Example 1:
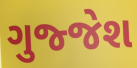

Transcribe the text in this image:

ગુજ્જેશ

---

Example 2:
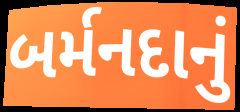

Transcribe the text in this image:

બર્મનદાનું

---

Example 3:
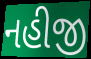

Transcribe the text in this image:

નહીજી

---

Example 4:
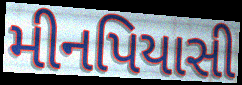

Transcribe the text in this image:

મીનપિયાસી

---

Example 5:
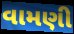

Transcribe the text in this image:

વામણી